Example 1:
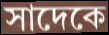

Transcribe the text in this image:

সাদেকে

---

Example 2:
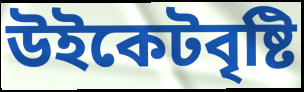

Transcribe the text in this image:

উইকেটবৃষ্টি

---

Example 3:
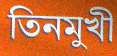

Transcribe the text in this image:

তিনমুখী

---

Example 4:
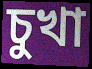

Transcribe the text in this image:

চুখা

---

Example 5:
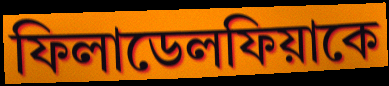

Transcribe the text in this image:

ফিলাডেলফিয়াকে